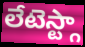
లేటెస్ట్గా